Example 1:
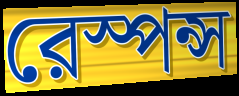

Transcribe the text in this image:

রেস্পন্স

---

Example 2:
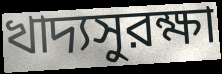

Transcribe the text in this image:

খাদ্যসুরক্ষা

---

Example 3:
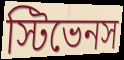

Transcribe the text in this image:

স্টিভেনস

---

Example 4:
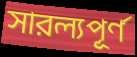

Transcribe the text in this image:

সারল্যপূর্ণ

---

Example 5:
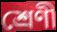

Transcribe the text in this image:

শ্রেণী